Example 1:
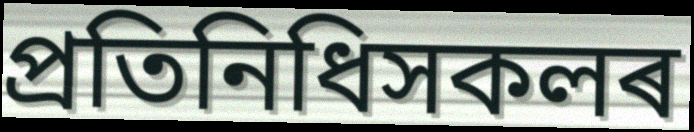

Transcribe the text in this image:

প্ৰতিনিধিসকলৰ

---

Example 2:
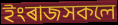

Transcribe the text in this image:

ইংৰাজসকলে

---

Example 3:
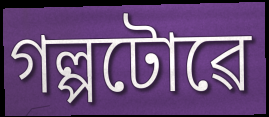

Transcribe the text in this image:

গল্পটোৱে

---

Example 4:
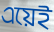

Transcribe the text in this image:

এয়েই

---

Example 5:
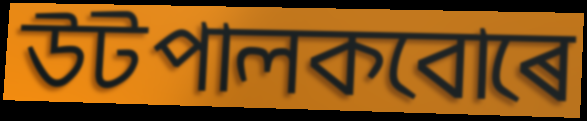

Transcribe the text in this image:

উটপালকবোৰে